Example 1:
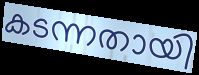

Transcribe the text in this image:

കടന്നതായി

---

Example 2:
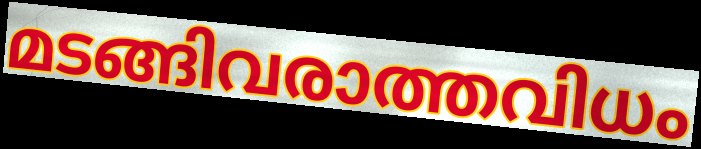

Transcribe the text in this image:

മടങ്ങിവരാത്തവിധം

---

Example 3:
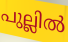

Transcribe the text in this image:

പുല്ലിൽ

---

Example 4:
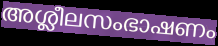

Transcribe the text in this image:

അശ്ലീലസംഭാഷണം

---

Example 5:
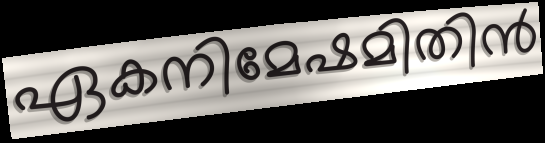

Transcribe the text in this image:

ഏകനിമേഷമിതിൻ